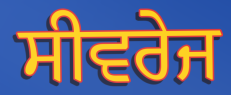
ਸੀਵਰੇਜ